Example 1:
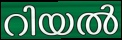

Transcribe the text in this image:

റിയൽ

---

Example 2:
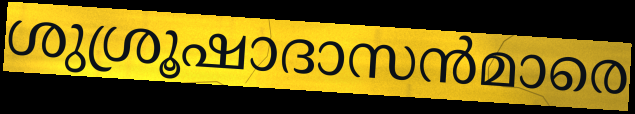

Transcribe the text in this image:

ശുശ്രൂഷാദാസൻമാരെ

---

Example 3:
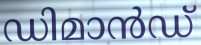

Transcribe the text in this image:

ഡിമാൻഡ്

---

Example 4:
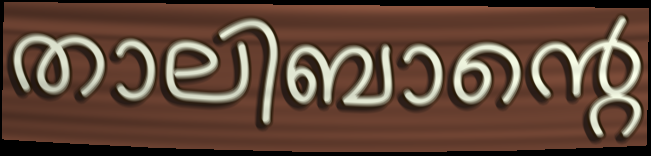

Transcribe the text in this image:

താലിബാന്റെ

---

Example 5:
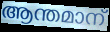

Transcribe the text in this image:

ആന്തമാന്